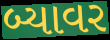
બ્યાવર